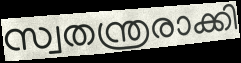
സ്വതന്ത്രരാക്കി